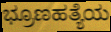
ಭ್ರೂಣಹತ್ಯೆಯ